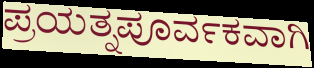
ಪ್ರಯತ್ನಪೂರ್ವಕವಾಗಿ